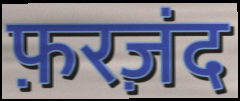
फ़रज़ंद